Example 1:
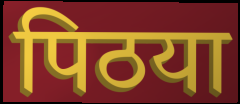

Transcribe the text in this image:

पिठया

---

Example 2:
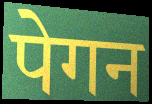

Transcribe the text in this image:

पेगन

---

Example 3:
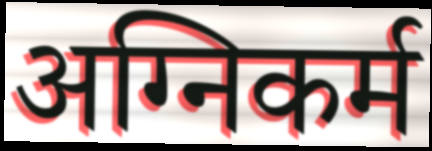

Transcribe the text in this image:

अग्निकर्म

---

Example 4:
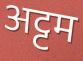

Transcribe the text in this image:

अट्टम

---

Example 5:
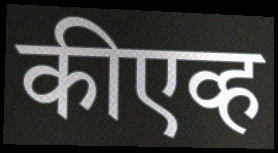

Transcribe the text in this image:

कीएव्ह